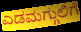
ಎಡಮಗ್ಗುಲಿಗೆ